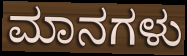
ಮಾನಗಳು